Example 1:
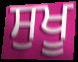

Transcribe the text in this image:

ਸੁਖੂ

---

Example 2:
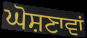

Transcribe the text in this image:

ਘੋਸ਼ਣਾਵਾਂ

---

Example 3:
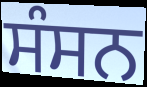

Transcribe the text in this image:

ਸੰਸਨ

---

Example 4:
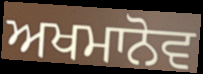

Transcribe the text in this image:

ਅਖਮਾਨੋਵ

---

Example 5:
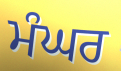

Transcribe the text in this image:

ਮੰਘਰ